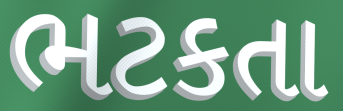
ભટકતા